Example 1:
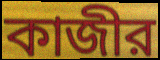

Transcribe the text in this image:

কাজীর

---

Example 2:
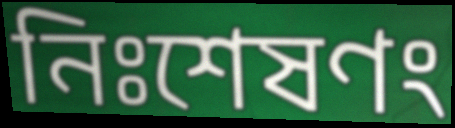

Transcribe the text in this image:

নিঃশেষণং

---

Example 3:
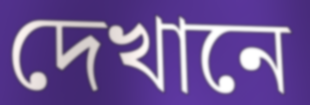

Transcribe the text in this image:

দেখানে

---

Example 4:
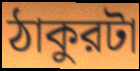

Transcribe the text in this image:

ঠাকুরটা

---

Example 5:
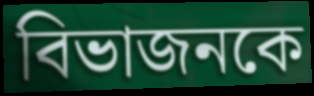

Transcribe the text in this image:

বিভাজনকে